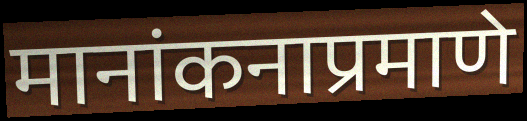
मानांकनाप्रमाणे